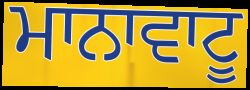
ਮਾਨਾਵਾਟੂ